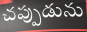
చప్పుడును